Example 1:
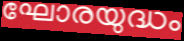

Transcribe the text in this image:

ഘോരയുദ്ധം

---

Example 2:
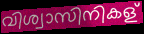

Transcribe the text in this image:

വിശ്വാസിനികള്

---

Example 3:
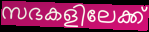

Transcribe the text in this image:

സഭകളിലേക്ക്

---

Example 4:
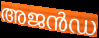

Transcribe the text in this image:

അജൻഡ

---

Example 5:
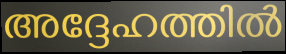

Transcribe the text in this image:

അദ്ദേഹത്തിൽ